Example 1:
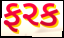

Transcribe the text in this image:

ફરક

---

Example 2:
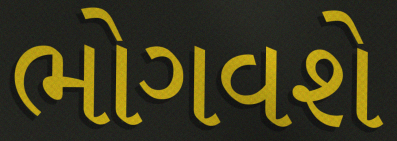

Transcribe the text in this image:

ભોગવશે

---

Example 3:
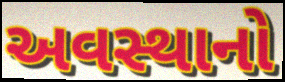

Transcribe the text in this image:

અવસ્થાનો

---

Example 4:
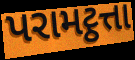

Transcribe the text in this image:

પરામટ્ઠત્તા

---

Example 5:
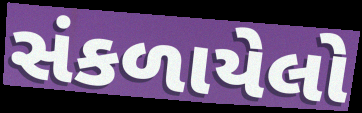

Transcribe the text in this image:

સંકળાયેલો